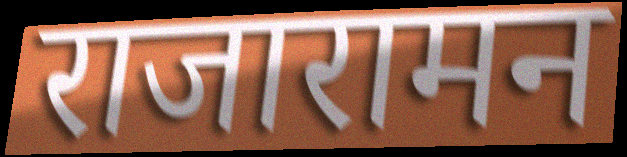
राजारामन